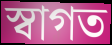
স্বাগত